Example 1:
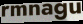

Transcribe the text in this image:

rmnagu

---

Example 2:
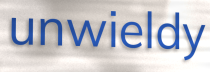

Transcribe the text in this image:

unwieldy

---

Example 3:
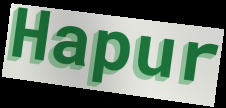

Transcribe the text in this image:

Hapur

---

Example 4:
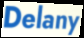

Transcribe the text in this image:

Delany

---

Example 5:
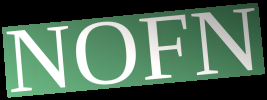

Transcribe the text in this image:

NOFN